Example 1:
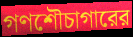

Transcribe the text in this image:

গণশৌচাগারের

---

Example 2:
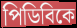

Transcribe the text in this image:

পিডিবিকে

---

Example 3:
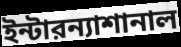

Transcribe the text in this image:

ইন্টারন্যাশানাল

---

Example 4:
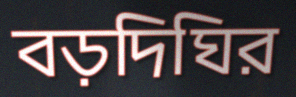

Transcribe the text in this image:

বড়দিঘির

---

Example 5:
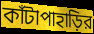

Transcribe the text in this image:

কাঁটাপাহাড়ির